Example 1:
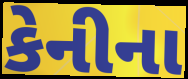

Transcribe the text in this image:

કેનીના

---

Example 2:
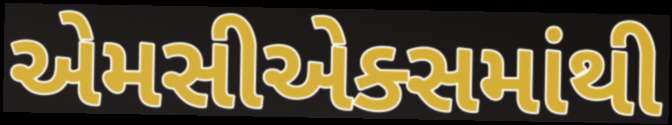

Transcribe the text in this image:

એમસીએક્સમાંથી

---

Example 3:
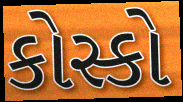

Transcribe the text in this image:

કોસ્કો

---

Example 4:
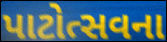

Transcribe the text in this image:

પાટોત્સવના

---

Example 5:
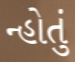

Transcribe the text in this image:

ન્હોતું